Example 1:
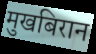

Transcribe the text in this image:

मुखबिरान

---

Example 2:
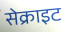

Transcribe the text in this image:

सेक्राइट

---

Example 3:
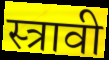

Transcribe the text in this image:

स्त्रावी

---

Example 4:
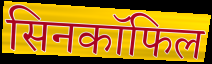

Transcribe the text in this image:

सिनकॉफिल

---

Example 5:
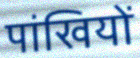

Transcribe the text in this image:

पांखियों